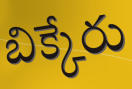
బిక్కేరు